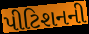
પીટિશનની